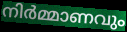
നിർമ്മാണവും